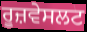
ਰੂਜ਼ਵੇਸਲਟ